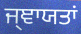
ਜ੍ਞਾਯਤਾਂ